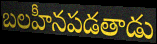
బలహీనపడతాడు